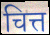
चित्त